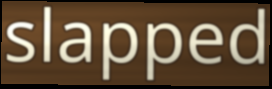
slapped